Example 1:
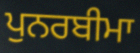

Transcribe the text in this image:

ਪੁਨਰਬੀਮਾ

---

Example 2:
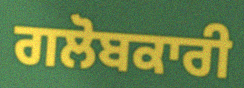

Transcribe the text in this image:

ਗਲੋਬਕਾਰੀ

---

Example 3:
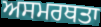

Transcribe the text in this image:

ਅਸਮਰਥਤਾ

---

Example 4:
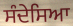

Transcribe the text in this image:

ਸੰਦੇਸਿਆ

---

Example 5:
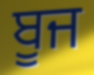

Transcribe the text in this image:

ਬੂਜ